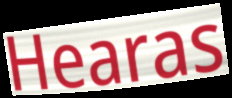
Hearas